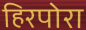
हिरपोरा